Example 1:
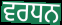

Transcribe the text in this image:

ਵਰਧਨ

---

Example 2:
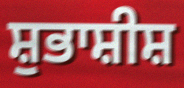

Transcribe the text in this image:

ਸ਼ੁਭਾਸ਼ੀਸ਼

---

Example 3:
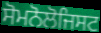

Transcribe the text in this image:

ਸੋਮਨੋਲੋਜਿਸਟ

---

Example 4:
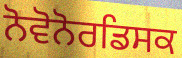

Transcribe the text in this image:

ਨੋਵੋਨੋਰਡਿਸਕ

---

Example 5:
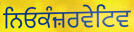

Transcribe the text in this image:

ਨਿਓਕੰਜ਼ਰਵੇਟਿਵ